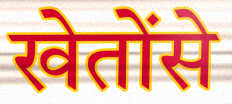
खेतोंसे